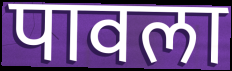
पावला